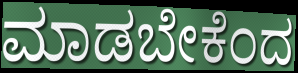
ಮಾಡಬೇಕೆಂದ